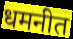
धमनीत